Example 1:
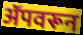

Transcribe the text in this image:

ॲपवरून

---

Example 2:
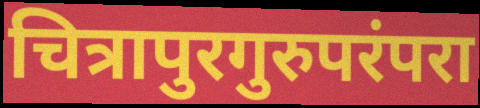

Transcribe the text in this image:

चित्रापुरगुरुपरंपरा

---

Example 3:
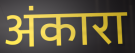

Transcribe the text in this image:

अंकारा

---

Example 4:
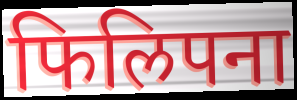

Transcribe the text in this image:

फिलिपना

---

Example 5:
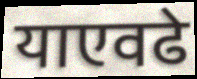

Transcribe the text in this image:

याएवढे